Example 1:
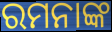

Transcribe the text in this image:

ରମନାଙ୍କ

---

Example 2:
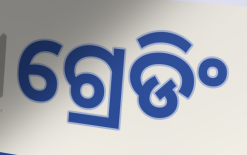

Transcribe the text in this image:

ଗ୍ରେଡିଂ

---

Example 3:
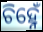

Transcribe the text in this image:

ଚିହ୍ନେଁ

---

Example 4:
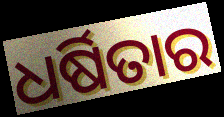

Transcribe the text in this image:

ଧର୍ଷିତାର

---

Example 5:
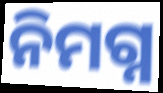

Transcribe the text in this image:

ନିମଗ୍ନ